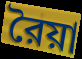
রৈয়া